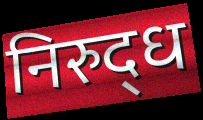
निरुद्ध